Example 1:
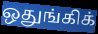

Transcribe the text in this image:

ஒதுங்கிக்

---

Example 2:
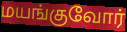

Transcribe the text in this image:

மயங்குவோர்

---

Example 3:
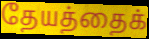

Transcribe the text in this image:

தேயத்தைக்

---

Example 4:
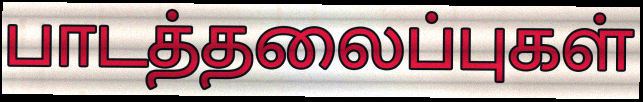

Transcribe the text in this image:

பாடத்தலைப்புகள்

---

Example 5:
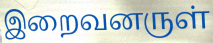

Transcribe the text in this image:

இறைவனருள்